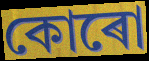
কোৰো